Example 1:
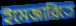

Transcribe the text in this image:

ইমেজারিতে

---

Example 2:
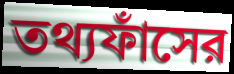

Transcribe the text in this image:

তথ্যফাঁসের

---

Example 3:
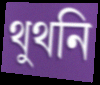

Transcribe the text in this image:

থুথনি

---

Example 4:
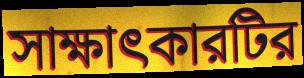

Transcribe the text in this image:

সাক্ষাৎকারটির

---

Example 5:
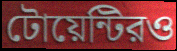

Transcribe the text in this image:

টোয়েন্টিরও